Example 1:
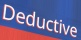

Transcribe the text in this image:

Deductive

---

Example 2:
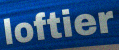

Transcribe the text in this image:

loftier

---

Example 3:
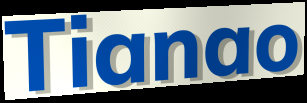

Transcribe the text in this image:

Tianao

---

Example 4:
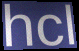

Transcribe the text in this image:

hcl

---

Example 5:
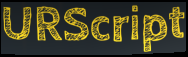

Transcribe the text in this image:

URScript